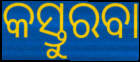
କସ୍ତୁରବା